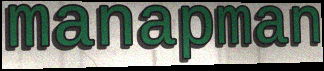
manapman